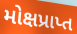
મોક્ષપ્રાપ્ત